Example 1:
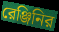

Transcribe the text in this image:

রেঞ্জিনির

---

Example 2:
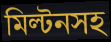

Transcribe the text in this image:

মিল্টনসহ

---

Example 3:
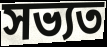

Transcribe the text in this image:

সভ্যত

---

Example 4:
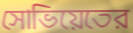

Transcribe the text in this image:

সোভিয়েতের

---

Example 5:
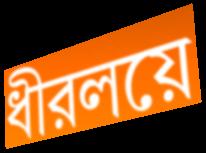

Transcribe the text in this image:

ধীরলয়ে